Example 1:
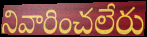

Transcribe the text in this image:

నివారించలేరు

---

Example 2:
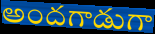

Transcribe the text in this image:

అందగాడుగా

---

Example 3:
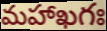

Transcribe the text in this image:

మహాఖగః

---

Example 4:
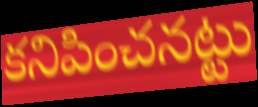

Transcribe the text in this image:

కనిపించనట్టు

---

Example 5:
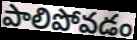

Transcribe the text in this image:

పాలిపోవడం